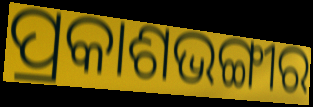
ପ୍ରକାଶଭଙ୍ଗୀର